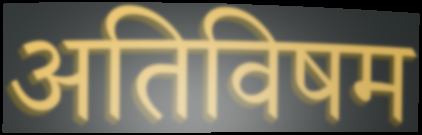
अतिविषम